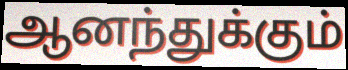
ஆனந்துக்கும்